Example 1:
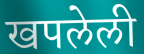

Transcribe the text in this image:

खपलेली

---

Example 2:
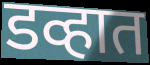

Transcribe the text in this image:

डव्हात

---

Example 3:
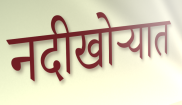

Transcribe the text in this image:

नदीखोर्‍यात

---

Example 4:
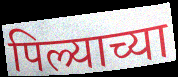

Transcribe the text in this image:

पिल्याच्या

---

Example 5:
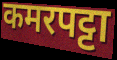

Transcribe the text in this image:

कमरपट्टा